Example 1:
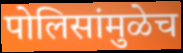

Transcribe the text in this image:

पोलिसांमुळेच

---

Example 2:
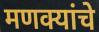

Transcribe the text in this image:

मणक्यांचे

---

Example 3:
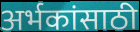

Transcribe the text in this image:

अर्भकांसाठी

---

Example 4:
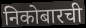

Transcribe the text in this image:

निकोबारची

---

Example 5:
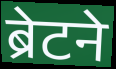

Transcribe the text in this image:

ब्रेटने